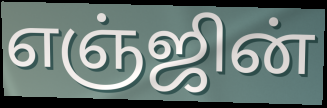
எஞ்ஜின்